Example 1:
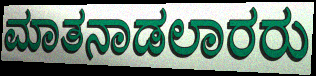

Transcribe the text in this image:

ಮಾತನಾಡಲಾರರು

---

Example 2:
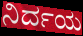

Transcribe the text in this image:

ನಿರ್ದಯ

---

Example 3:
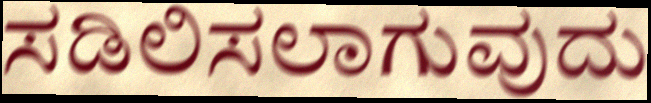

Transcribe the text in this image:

ಸಡಿಲಿಸಲಾಗುವುದು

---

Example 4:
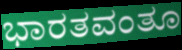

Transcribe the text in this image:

ಭಾರತವಂತೂ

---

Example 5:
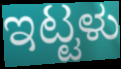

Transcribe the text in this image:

ಇಟ್ಟಳು